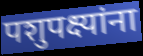
पशुपक्ष्यांना